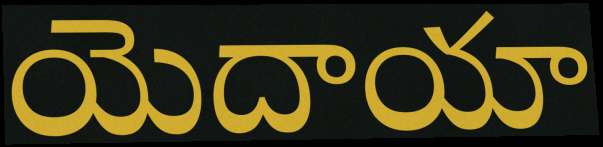
యెదాయా